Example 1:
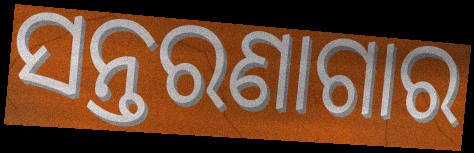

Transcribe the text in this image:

ସନ୍ତରଣାଗାର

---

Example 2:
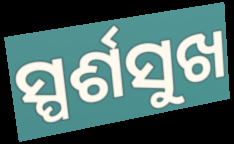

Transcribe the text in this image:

ସ୍ପର୍ଶସୁଖ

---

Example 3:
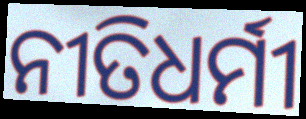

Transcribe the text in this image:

ନୀତିଧର୍ମୀ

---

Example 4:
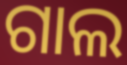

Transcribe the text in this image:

ଗାଲ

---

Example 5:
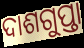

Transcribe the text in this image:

ଦାଶଗୁପ୍ତା